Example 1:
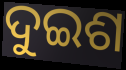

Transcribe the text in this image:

ଦୁଇଶ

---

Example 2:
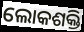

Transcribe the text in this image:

ଲୋକଶକ୍ତି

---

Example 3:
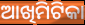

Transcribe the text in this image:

ଆଖିମିଟିକା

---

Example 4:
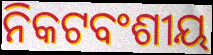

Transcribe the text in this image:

ନିକଟବଂଶୀୟ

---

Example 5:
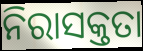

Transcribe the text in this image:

ନିରାସକ୍ତତା